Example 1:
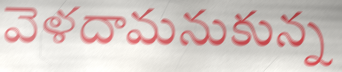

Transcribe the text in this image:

వెళదామనుకున్న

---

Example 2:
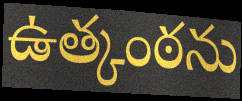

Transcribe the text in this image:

ఉత్కంఠను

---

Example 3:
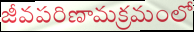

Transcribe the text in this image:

జీవపరిణామక్రమంలో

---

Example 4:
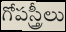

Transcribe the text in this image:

గోపస్త్రీలు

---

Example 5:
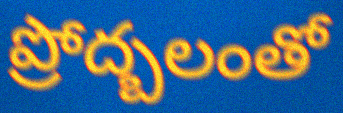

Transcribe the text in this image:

ప్రోద్బలంతో